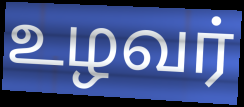
உழவர்